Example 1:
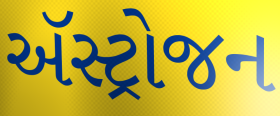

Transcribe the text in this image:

ઍસ્ટ્રોજન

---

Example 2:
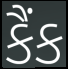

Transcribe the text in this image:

કૈંક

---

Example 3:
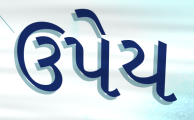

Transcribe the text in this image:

ઉપેય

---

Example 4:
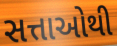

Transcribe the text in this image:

સત્તાઓથી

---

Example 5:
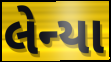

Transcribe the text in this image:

લેન્યા